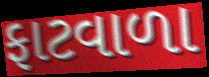
ફાટવાળા